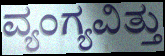
ವ್ಯಂಗ್ಯವಿತ್ತು